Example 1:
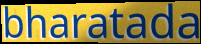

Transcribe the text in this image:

bharatada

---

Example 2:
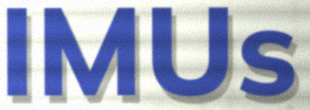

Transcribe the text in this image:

IMUs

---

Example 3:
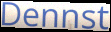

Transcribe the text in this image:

Dennst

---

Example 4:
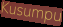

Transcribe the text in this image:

Kusumpu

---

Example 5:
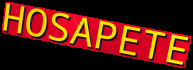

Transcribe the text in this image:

HOSAPETE